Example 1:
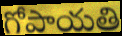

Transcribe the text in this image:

గోపాయతి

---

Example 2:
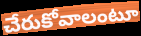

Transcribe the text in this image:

చేరుకోవాలంటూ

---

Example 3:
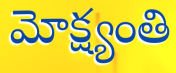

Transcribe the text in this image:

మోక్ష్యంతి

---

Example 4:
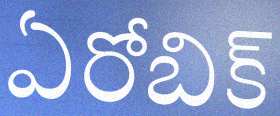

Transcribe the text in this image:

ఏరోబిక్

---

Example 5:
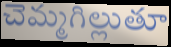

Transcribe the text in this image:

చెమ్మగిల్లుతూ